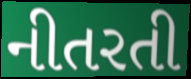
નીતરતી